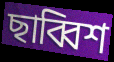
ছাব্বিশ